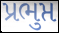
પ્રભુપ્ત